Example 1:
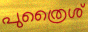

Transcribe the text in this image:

പുത്രൈശ്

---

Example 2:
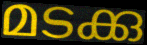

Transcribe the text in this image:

മടക്കു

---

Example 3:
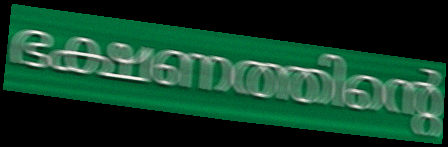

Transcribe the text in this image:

ഭക്ഷണത്തിന്റെ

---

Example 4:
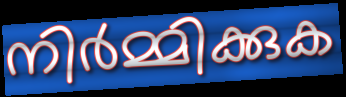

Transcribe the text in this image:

നിർമ്മിക്കുക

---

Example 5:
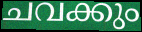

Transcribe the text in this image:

ചവക്കും